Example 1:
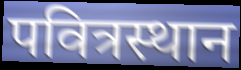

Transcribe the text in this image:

पवित्रस्‍थान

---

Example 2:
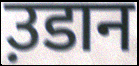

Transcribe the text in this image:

उ़डान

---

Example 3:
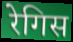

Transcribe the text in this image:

रेगिस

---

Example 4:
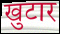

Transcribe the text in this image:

खुटार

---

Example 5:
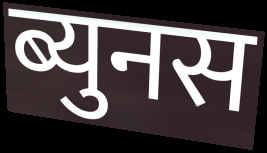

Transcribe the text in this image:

ब्युनस